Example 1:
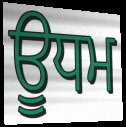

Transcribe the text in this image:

ਊਧਮ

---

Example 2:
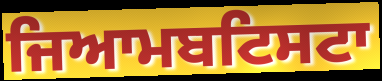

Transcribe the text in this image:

ਜਿਆਮਬਟਿਸਟਾ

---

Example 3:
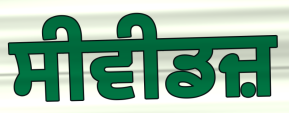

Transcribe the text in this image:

ਸੀਵੀਡਜ਼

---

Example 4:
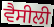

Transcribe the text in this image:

ਵੈਸੀਲੀ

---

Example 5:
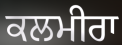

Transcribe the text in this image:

ਕਲਮੀਰਾ